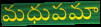
మధుపమా